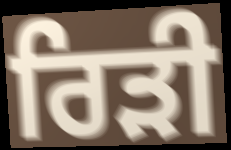
ਰਿੜੀ